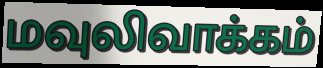
மவுலிவாக்கம்